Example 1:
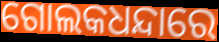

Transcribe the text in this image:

ଗୋଲକଧନ୍ଦାରେ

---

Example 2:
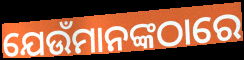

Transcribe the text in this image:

ଯେଉଁମାନଙ୍କଠାରେ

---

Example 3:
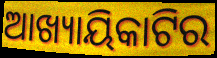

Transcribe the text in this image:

ଆଖ୍ୟାୟିକାଟିର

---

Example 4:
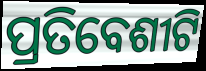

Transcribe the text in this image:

ପ୍ରତିବେଶୀଟି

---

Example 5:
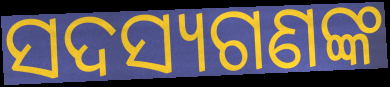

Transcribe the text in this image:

ସଦସ୍ୟଗଣଙ୍କ